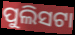
ପୁଲିସଟା